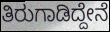
ತಿರುಗಾಡಿದ್ದೇನೆ